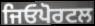
ਜਿਓਪੋਰਟਲ